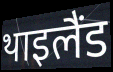
थाइलैंड